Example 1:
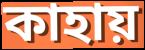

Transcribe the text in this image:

কাহায়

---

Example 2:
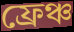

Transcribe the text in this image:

ফ্রেঞ্চ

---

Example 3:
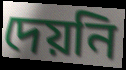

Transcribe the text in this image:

দেয়নি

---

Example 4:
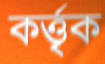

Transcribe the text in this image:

কর্ত্তৃক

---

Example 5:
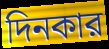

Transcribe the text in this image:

দিনকার